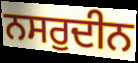
ਨਸਰੁਦੀਨ